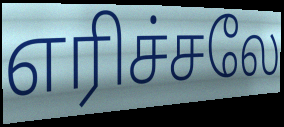
எரிச்சலே